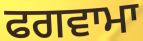
ਫਗਵਾਮਾ